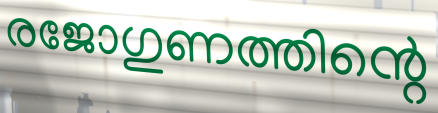
രജോഗുണത്തിന്റെ